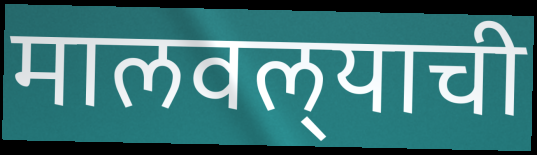
मालवल्याची